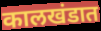
कालखंडात